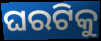
ଘରଟିକୁ